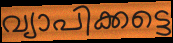
വ്യാപിക്കട്ടെ